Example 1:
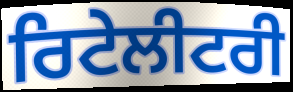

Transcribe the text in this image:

ਰਿਟੇਲੀਟਰੀ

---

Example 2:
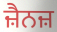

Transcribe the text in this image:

ਜ਼ੈਨਜ਼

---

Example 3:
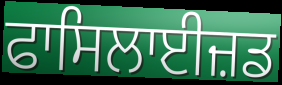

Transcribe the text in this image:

ਫਾਸਿਲਾਈਜ਼ਡ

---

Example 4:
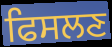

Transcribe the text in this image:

ਫਿਸਲਣ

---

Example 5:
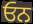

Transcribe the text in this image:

ਓਨ